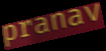
pranav